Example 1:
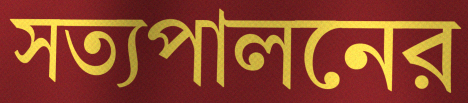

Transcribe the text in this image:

সত্যপালনের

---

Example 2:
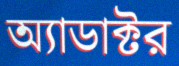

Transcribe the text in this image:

অ্যাডাক্টর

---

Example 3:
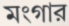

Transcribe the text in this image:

মংগার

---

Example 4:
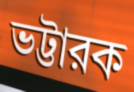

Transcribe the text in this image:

ভট্টারক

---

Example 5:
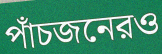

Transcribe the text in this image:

পাঁচজনেরও